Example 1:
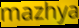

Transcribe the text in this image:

mazhya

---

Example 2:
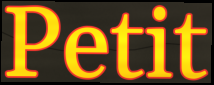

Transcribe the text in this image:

Petit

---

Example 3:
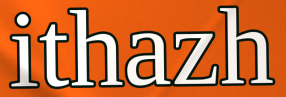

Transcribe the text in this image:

ithazh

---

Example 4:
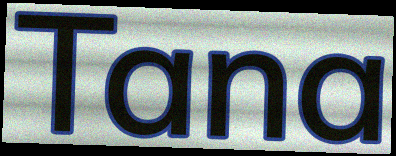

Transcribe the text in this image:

Tana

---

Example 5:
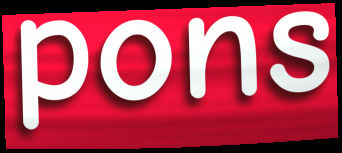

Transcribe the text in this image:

pons